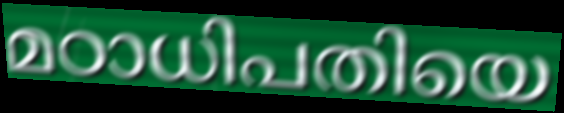
മഠാധിപതിയെ